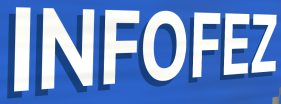
INFOFEZ